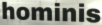
hominis